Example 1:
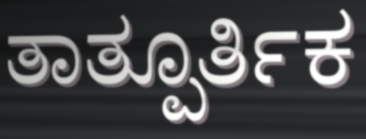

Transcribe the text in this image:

ತಾತ್ಪೂರ್ತಿಕ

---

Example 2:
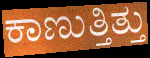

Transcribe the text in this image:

ಕಾಣುತ್ತಿತ್ತು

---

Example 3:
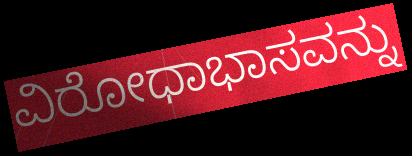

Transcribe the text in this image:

ವಿರೋಧಾಭಾಸವನ್ನು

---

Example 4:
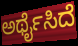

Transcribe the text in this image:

ಅರ್ಥೈಸಿದೆ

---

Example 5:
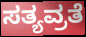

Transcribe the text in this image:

ಸತ್ಯವ್ರತೆ